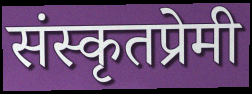
संस्कृतप्रेमी